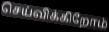
செய்விக்கிறோம்